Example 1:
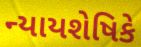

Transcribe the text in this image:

ન્યાયશેષિકે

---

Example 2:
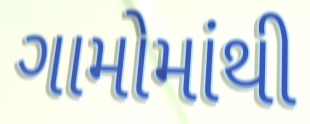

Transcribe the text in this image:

ગામોમાંથી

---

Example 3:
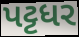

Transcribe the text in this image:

પટ્ટધર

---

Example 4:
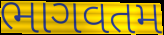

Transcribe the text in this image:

ભાગવતમ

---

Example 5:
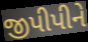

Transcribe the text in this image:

જીપીપીને